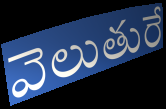
వెలుతురే